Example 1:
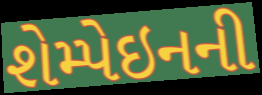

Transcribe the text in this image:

શેમ્પેઇનની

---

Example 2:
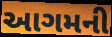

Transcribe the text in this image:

આગમની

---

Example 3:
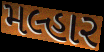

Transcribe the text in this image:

મલ્હાર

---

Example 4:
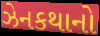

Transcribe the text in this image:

ઝેનકથાનો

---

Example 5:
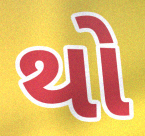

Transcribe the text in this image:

થો